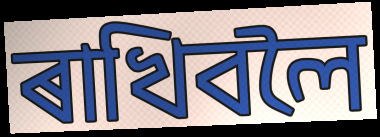
ৰাখিবলৈ